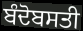
ਬੰਦੋਬਸਤੀ